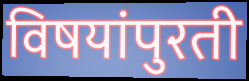
विषयांपुरती